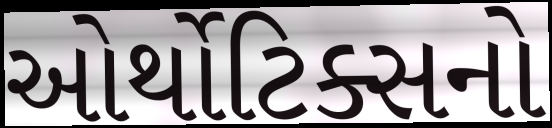
ઓર્થોટિક્સનો